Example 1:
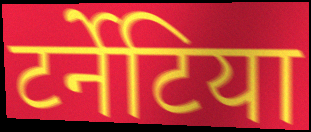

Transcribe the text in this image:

टर्नेटिया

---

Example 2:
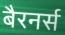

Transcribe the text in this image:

बैरनर्स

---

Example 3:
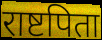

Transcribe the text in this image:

राष्टपिता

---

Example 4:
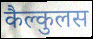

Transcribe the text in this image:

कैल्कुलस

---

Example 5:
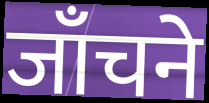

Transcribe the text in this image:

जाँचने